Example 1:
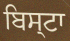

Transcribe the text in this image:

ਬਿਸ੍ਟਾ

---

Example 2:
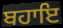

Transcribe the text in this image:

ਬਹਾਇ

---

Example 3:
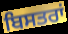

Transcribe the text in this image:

ਬਿਸਤਰਾਂ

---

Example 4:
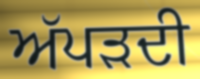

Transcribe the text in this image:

ਅੱਪੜਦੀ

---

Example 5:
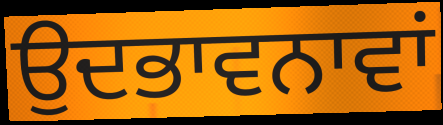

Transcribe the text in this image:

ਉਦਭਾਵਨਾਵਾਂ